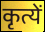
कृत्यें